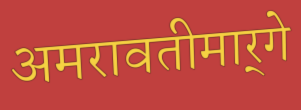
अमरावतीमार्गे